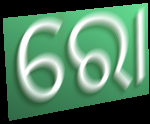
ରୋ